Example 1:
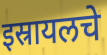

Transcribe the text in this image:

इस्रायलचे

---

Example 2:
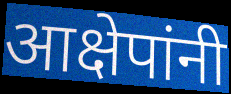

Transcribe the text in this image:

आक्षेपांनी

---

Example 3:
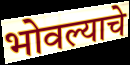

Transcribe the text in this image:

भोवल्याचे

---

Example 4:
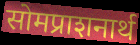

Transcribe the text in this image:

सोमप्राशनार्थ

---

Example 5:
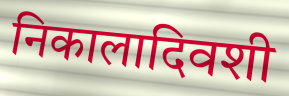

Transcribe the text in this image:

निकालादिवशी